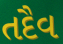
તદૈવ